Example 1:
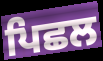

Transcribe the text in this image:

ਪਿਛਲ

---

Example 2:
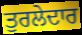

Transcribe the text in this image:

ਤੁਰਲੇਦਾਰ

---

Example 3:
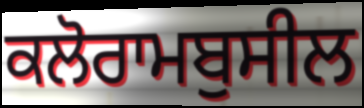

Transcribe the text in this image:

ਕਲੋਰਾਮਬੁਸੀਲ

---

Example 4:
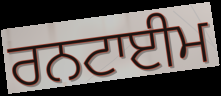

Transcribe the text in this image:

ਰਨਟਾਈਮ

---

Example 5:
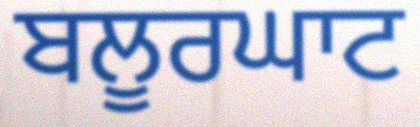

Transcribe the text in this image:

ਬਲੂਰਘਾਟ